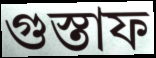
গুস্তাফ